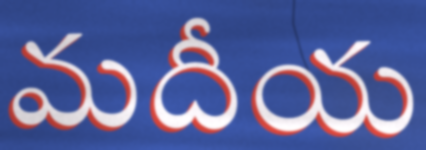
మదీయ